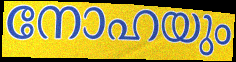
നോഹയും